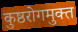
कुष्ठरोगमुक्त